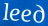
leed